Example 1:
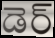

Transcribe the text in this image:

డెర్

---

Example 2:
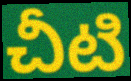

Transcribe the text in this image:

చీటి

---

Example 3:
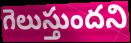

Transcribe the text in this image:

గెలుస్తుందని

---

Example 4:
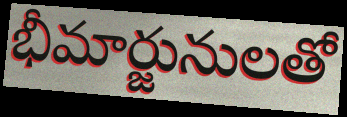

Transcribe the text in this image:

భీమార్జునులతో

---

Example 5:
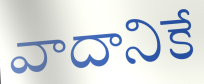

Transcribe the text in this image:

వాదానికే